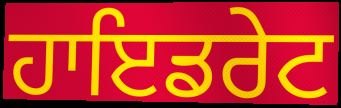
ਹਾਇਡਰੇਟ